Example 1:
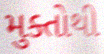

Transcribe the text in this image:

મુક્તોથી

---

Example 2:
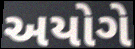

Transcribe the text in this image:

અયોગે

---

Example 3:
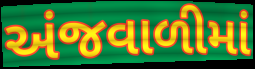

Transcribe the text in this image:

અંજવાળીમાં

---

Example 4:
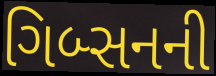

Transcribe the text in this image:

ગિબ્સનની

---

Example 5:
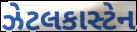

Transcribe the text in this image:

ઝેટલકાસ્ટેન